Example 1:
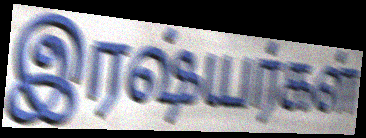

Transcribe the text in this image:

இரஷ்யர்கள்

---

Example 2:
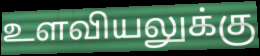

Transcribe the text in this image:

உளவியலுக்கு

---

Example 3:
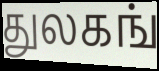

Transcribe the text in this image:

துலகங்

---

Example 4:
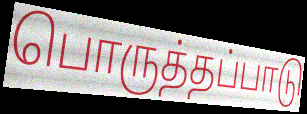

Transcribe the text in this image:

பொருத்தப்பாடு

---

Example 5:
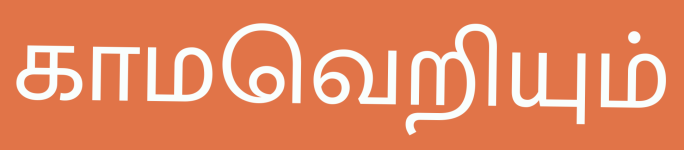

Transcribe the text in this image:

காமவெறியும்